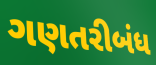
ગણતરીબંધ